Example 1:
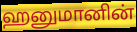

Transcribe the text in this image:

ஹனுமானின்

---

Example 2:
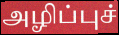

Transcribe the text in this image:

அழிப்புச்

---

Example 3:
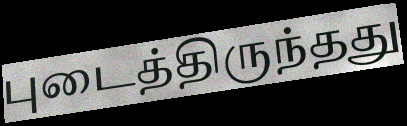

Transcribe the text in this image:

புடைத்திருந்தது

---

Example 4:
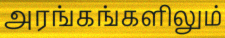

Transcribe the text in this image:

அரங்கங்களிலும்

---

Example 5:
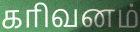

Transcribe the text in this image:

கரிவனம்